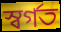
স্বর্গত